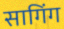
सागिंग